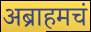
अब्राहमचं